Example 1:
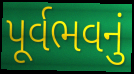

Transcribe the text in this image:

પૂર્વભવનું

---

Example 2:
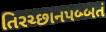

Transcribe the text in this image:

તિરચ્છાનપબ્બતં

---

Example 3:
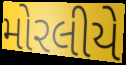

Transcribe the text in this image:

મોરલીયે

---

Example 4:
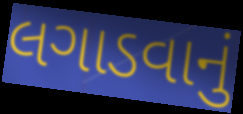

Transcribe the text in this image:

લગાડવાનું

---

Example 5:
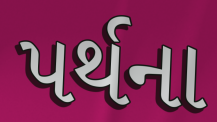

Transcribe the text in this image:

પર્થના